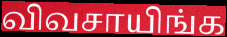
விவசாயிங்க